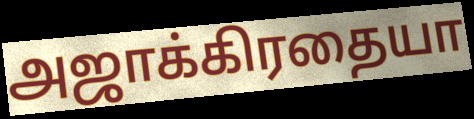
அஜாக்கிரதையா